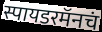
स्पायडरमॅनचं